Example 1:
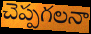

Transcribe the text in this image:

చెప్పగలనా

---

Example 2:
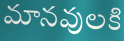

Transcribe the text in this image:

మానవులకి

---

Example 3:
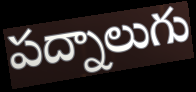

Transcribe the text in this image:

పద్నాలుగు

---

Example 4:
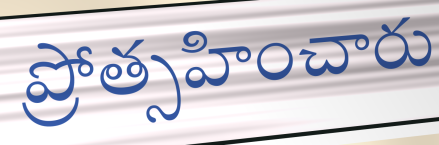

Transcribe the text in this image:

ప్రోత్సహించారు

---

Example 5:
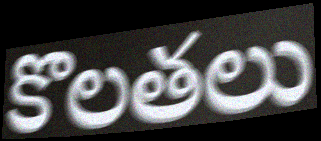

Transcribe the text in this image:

కొలతలు